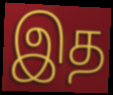
இத